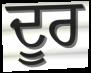
ਦੂਰ